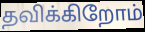
தவிக்கிறோம்